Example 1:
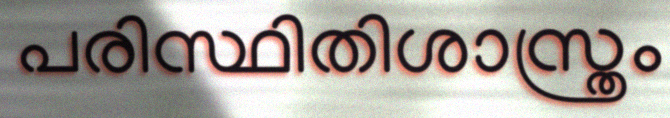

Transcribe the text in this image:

പരിസ്ഥിതിശാസ്ത്രം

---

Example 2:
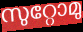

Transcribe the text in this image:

സുറ്റോമു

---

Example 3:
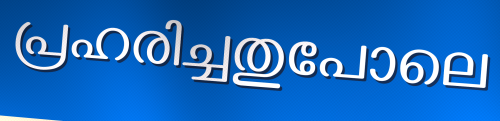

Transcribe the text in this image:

പ്രഹരിച്ചതുപോലെ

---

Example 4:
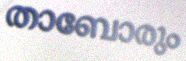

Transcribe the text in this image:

താബോരും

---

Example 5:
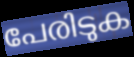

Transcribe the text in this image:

പേരിടുക